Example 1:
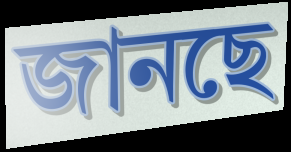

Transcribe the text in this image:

জানছে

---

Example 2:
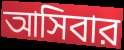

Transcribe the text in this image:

আসিবার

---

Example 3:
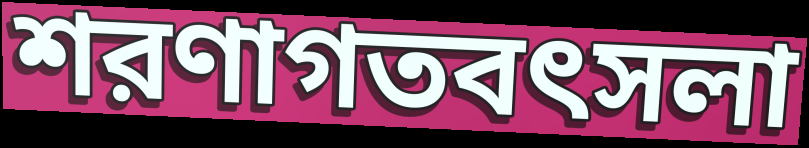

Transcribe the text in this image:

শরণাগতবৎসলা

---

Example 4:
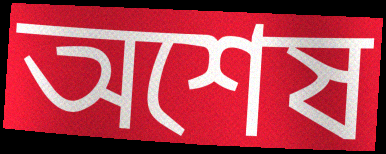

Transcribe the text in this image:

অশেষ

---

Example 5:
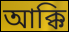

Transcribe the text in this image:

আক্কি